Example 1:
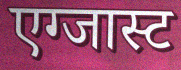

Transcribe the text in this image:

एग्जास्ट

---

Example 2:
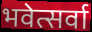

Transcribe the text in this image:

भवेत्सर्वा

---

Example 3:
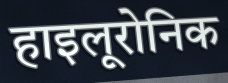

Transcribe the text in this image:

हाइलूरोनिक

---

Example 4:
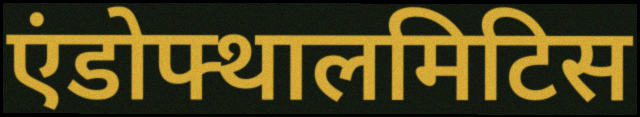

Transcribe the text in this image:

एंडोफ्थालमिटिस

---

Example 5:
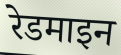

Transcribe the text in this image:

रेडमाइन